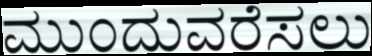
ಮುಂದುವರೆಸಲು